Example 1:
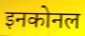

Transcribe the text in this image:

इनकोनल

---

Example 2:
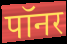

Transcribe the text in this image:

पॉनर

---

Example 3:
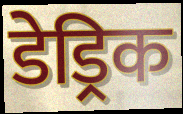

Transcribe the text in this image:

डेड्रिक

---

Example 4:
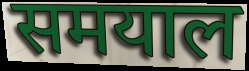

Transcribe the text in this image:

समयाल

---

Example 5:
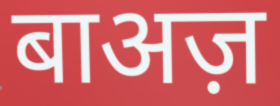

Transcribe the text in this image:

बाअज़